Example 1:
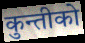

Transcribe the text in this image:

कुन्तीको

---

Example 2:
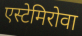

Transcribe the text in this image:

एस्टेमिरोवा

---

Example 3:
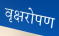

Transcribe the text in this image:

वृक्षरोपण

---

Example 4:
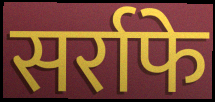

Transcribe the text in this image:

सर्राफे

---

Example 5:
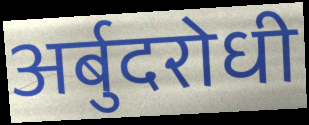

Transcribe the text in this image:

अर्बुदरोधी